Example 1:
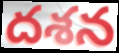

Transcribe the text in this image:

దశన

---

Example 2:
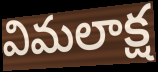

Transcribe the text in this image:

విమలాక్ష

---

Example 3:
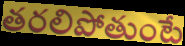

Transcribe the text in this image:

తరలిపోతుంటే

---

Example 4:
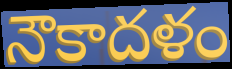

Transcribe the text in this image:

నౌకాదళం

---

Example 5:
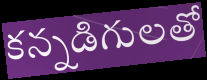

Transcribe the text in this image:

కన్నడిగులతో